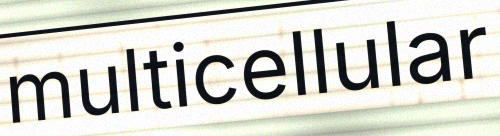
multicellular